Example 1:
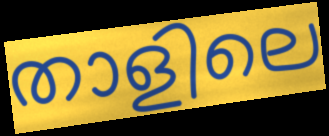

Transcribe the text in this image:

താളിലെ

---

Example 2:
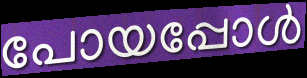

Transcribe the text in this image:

പോയപ്പോൾ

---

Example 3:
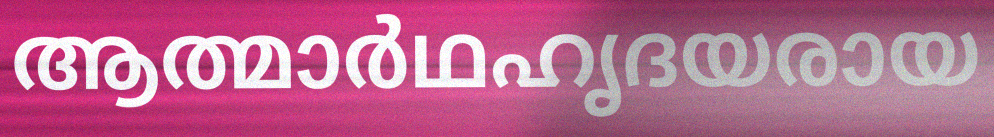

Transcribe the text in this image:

ആത്മാർഥഹൃദയരായ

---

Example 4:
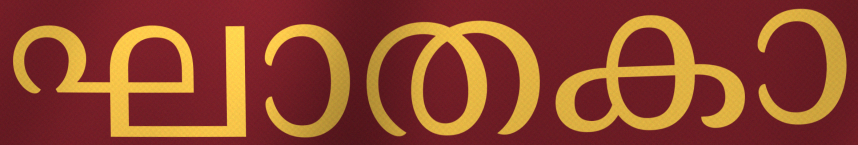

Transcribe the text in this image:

ഘാതകാ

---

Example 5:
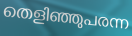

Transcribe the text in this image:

തെളിഞ്ഞുപരന്ന